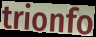
trionfo